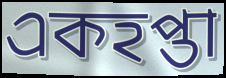
একহপ্তা